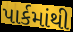
પાર્કમાંથી